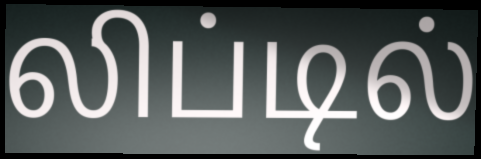
லிப்டில்